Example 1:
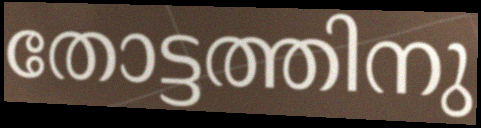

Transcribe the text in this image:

തോട്ടത്തിനു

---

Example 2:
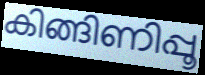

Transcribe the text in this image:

കിങ്ങിണിപ്പൂ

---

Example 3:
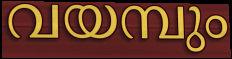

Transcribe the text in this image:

വയമ്പും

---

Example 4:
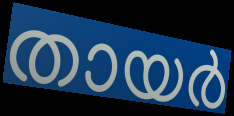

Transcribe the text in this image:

തായർ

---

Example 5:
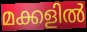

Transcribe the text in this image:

മക്കളിൽ